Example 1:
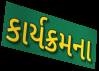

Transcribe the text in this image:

કાર્યક્રમના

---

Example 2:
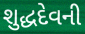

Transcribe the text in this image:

શુદ્ધદેવની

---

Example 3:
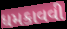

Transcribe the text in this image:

ધમકાવવી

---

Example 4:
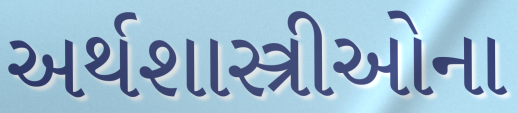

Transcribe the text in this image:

અર્થશાસ્ત્રીઓના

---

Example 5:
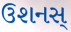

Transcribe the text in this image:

ઉશનસ્